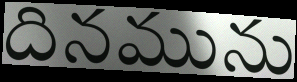
దినమును